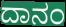
ದಾನಂ